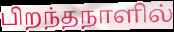
பிறந்தநாளில்